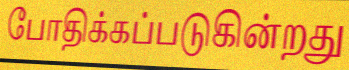
போதிக்கப்படுகின்றது